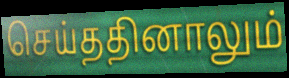
செய்ததினாலும்